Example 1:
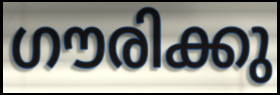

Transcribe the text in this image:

ഗൗരിക്കു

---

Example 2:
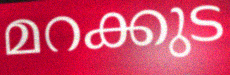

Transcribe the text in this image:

മറക്കുട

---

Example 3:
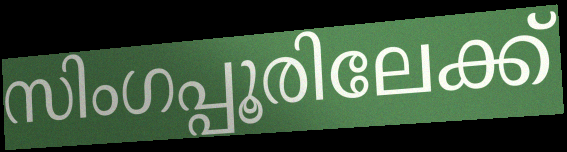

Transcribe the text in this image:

സിംഗപ്പൂരിലേക്ക്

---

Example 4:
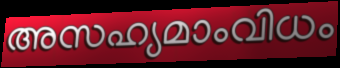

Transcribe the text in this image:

അസഹ്യമാംവിധം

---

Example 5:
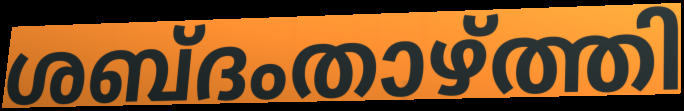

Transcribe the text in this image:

ശബ്ദംതാഴ്ത്തി